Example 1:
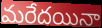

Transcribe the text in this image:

మరేదయినా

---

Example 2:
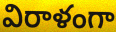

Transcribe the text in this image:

విరాళంగా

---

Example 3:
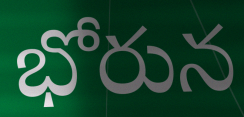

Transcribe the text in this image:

భోరున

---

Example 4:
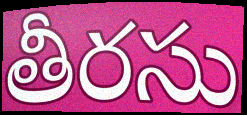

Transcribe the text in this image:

తీరసు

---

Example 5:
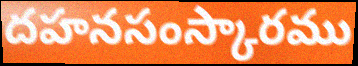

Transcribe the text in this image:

దహనసంస్కారము